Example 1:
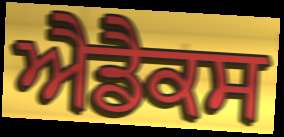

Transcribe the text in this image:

ਐਡੈਕਸ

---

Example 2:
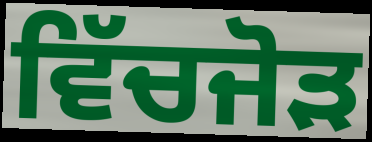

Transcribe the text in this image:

ਵਿੱਚਜੋੜ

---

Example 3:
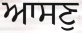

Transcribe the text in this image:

ਆਸਣੁ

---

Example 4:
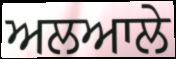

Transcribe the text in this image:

ਅਲਆਲੇ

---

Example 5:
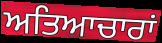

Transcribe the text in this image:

ਅਤਿਆਚਾਰਾਂ